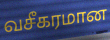
வசீகரமான